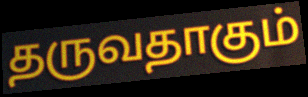
தருவதாகும்